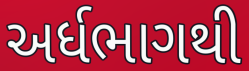
અર્ધભાગથી